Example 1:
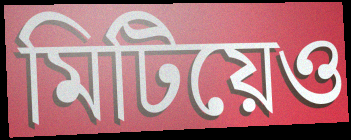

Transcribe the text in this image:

মিটিয়েও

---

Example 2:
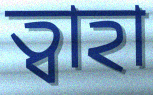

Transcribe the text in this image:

ত্বাহা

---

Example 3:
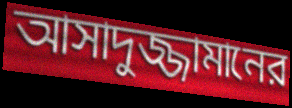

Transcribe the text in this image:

আসাদুজ্জামানের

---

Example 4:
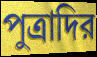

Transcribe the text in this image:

পুত্রাদির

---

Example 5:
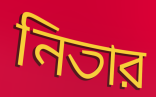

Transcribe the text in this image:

নিতার